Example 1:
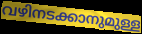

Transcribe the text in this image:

വഴിനടക്കാനുമുള്ള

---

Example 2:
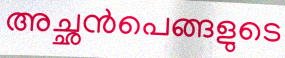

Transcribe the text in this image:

അച്ഛൻപെങ്ങളുടെ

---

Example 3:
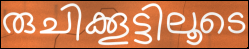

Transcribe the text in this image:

രുചിക്കൂട്ടിലൂടെ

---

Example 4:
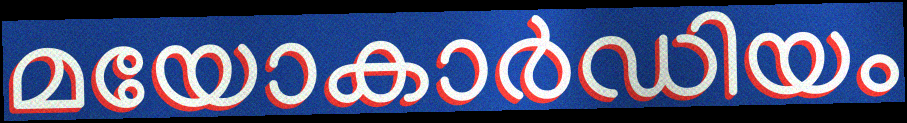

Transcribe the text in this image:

മയോകാർഡിയം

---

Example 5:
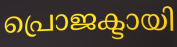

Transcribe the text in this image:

പ്രൊജക്ടായി